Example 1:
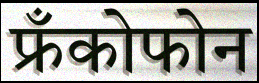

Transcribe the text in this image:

फ्रँकोफोन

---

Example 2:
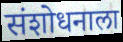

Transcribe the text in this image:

संशोधनाला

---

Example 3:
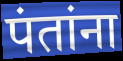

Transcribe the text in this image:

पंतांना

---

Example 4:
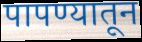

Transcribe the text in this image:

पापण्यातून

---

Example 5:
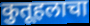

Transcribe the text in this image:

कुतूहलाचा